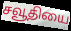
சவூதியை